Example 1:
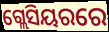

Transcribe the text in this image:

ଗ୍ଲେସିୟରରେ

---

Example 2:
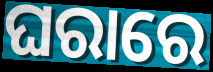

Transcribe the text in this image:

ଘରାରେ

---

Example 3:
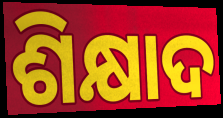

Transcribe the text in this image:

ଶିକ୍ଷାଦ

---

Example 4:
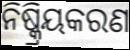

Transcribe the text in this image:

ନିଷ୍କ୍ରିୟକରଣ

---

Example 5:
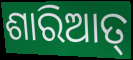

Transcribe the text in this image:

ଶାରିଆତ୍